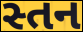
સ્તન